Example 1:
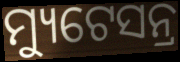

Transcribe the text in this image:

ମ୍ୟୁଟେସନ୍ର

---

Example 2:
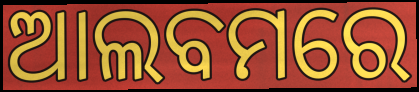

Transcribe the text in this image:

ଆଲବମରେ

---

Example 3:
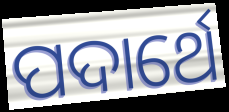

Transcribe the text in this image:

ପଦାର୍ଥେ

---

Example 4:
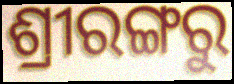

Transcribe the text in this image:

ଶ୍ରୀରଙ୍ଗରୁ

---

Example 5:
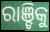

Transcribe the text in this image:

ରାଞ୍ଚିକୁ